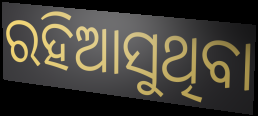
ରହିଆସୁଥିବା